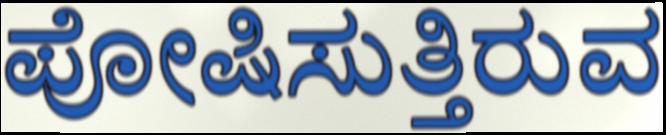
ಪೋಷಿಸುತ್ತಿರುವ